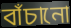
বাঁচানো